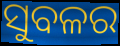
ସୁବଳର